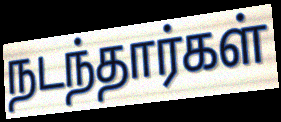
நடந்தார்கள்